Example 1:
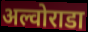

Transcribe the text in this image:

अल्वोराडा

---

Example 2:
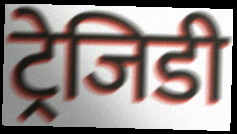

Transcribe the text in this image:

ट्रेजिडी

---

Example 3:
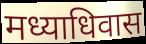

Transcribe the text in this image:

मध्याधिवास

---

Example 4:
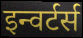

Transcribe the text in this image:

इन्वर्टर्स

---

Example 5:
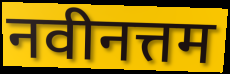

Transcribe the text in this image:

नवीनत्तम